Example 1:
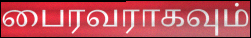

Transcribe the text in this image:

பைரவராகவும்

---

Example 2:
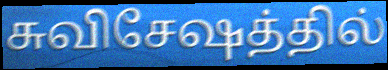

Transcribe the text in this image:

சுவிசேஷத்தில்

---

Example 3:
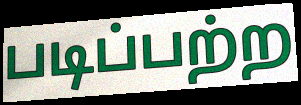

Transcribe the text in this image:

படிப்பற்ற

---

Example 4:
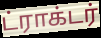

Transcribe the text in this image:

ட்ராக்டர்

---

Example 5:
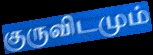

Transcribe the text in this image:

குருவிடமும்